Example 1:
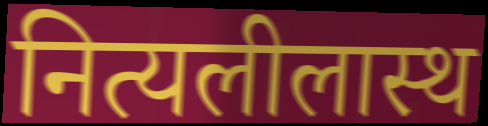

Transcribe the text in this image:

नित्यलीलास्थ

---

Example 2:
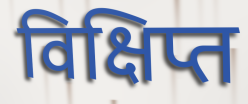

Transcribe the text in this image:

विक्षिप्त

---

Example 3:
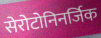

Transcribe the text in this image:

सेरोटोनिनर्जिक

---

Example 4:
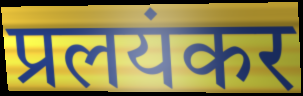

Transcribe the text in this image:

प्रलयंकर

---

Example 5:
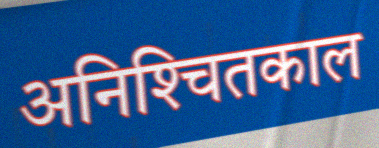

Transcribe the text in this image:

अनिश्‍चितकाल